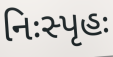
નિઃસ્પૃહઃ